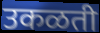
उकळती